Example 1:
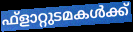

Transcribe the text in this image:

ഫ്ളാറ്റുടമകൾക്ക്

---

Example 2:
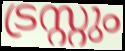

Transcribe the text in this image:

ട്രസ്റ്റും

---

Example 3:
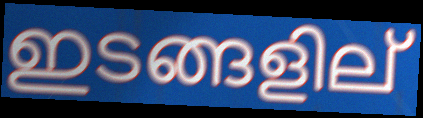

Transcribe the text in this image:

ഇടങ്ങളില്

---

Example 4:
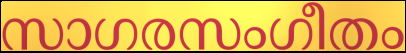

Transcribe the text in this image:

സാഗരസംഗീതം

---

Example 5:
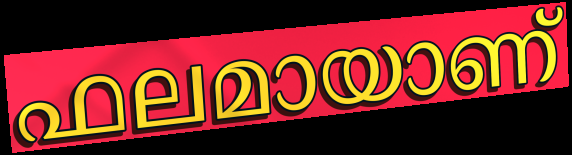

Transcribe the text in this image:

ഫലമായാണ്